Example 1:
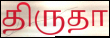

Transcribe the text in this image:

திருதா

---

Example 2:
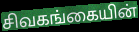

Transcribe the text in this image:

சிவகங்கையின்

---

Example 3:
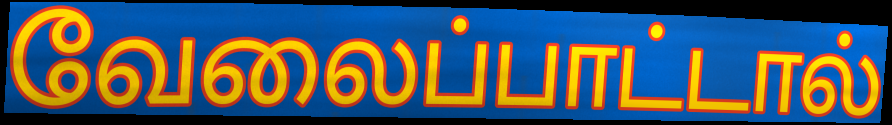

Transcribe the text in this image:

வேலைப்பாட்டால்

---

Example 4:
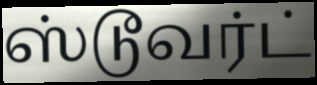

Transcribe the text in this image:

ஸ்டூவர்ட்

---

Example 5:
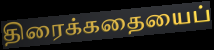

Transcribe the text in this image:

திரைக்கதையைப்